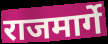
राजमार्गे